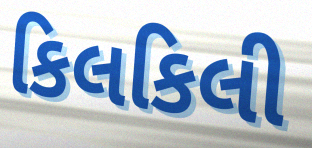
કિલકિલી